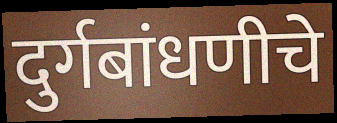
दुर्गबांधणीचे